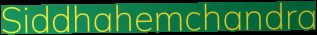
Siddhahemchandra